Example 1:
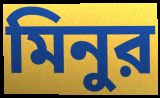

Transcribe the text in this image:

মিনুর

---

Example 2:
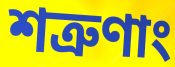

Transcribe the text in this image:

শত্রুণাং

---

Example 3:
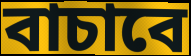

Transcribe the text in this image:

বাচাবে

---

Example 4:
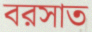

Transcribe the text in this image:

বরসাত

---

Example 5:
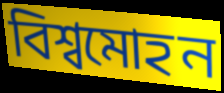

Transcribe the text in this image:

বিশ্বমোহন